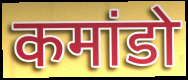
कमांडो